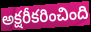
అక్షరీకరించింది